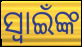
ସ୍ଵାଇଁଙ୍କ